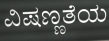
ವಿಷಣ್ಣತೆಯ